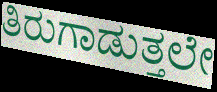
ತಿರುಗಾಡುತ್ತಲೇ